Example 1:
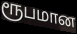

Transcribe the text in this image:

ரூபமான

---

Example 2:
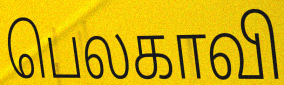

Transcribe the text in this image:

பெலகாவி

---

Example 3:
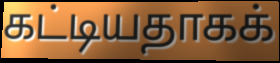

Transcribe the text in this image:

கட்டியதாகக்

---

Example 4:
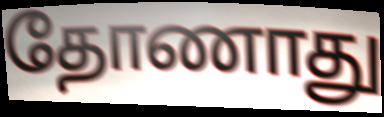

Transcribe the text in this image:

தோணாது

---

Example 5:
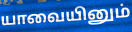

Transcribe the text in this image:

யாவையினும்